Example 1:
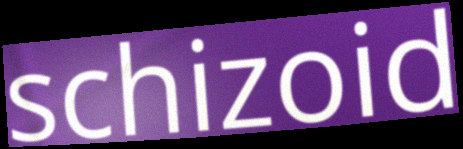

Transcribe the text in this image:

schizoid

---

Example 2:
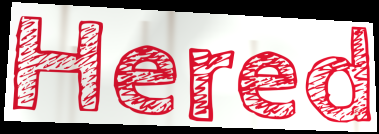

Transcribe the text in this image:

Hered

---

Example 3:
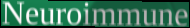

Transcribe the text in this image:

Neuroimmune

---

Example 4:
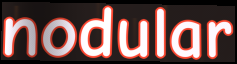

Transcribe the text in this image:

nodular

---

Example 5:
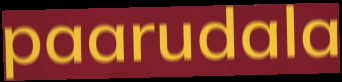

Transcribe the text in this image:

paarudala